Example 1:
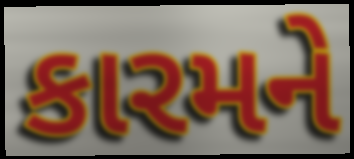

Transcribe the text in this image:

કારમને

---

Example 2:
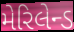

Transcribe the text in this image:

મેરિલેન્ડ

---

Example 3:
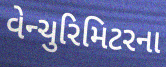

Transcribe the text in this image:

વેન્ચુરિમિટરના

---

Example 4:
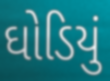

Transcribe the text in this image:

ઘોડિયું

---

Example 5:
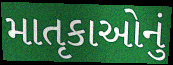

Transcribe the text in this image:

માતૃકાઓનું